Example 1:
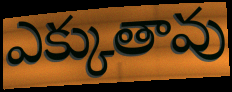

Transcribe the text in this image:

ఎక్కుతావు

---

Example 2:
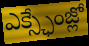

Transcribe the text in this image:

ఎక్స్ఛేంజ్లో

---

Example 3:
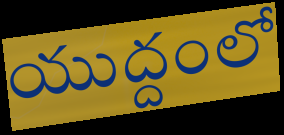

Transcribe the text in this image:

యుద్దంలో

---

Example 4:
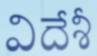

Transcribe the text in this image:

విదేశీ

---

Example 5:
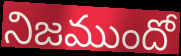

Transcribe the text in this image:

నిజముందో